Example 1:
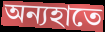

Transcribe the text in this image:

অন্যহাতে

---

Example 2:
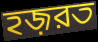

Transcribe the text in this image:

হজ়রত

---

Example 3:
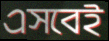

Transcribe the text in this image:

এসবেই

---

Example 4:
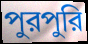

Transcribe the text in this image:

পুরপুরি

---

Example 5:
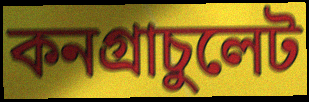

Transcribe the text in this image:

কনগ্রাচুলেট